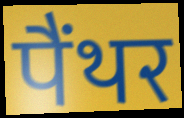
पैंथर